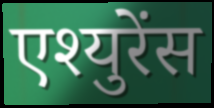
एश्युरेंस